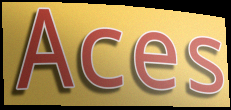
Aces